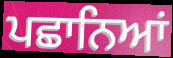
ਪਛਾਨਿਆਂ